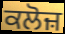
ਕਲੋਜ਼